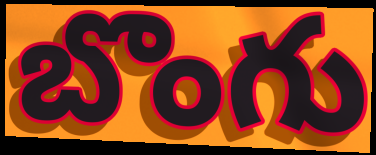
బొంగు